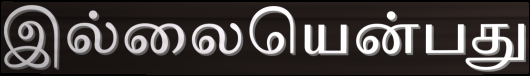
இல்லையென்பது